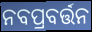
ନବପ୍ରବର୍ତ୍ତନ